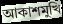
আকাশমুখি